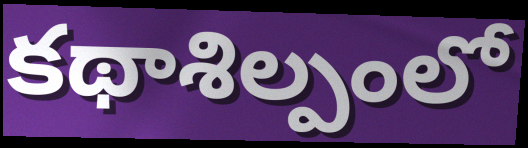
కథాశిల్పంలో